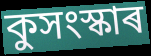
কুসংস্কাৰ